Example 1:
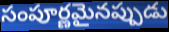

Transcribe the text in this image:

సంపూర్ణమైనప్పుడు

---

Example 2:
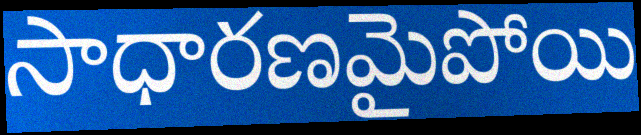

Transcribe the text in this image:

సాధారణమైపోయి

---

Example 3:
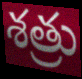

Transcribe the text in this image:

శత్రు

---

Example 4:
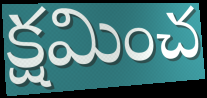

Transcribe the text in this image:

క్షమించ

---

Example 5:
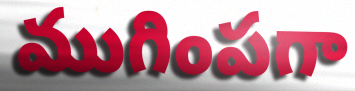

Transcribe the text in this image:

ముగింపగా